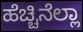
ಹೆಚ್ಚಿನೆಲ್ಲಾ